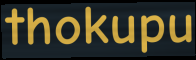
thokupu